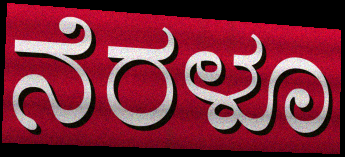
ನೆರಳೂ